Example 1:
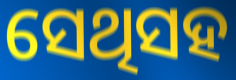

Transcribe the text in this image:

ସେଥିସହ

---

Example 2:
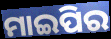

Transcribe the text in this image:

ମାଇପିର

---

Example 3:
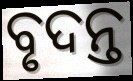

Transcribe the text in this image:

ବୃଦନ୍ତ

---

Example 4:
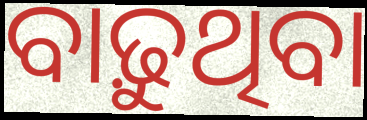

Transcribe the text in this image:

ବାଢ଼ୁଥିବା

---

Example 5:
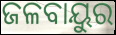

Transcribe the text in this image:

ଜଳବାୟୁର